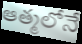
ఆత్మలోనే